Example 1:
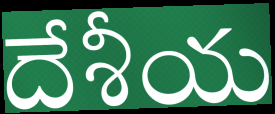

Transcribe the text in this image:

దేశీయ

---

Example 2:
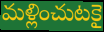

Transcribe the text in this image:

మళ్లించుటకై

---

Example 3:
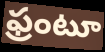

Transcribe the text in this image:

ఫ్రంటూ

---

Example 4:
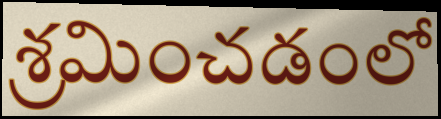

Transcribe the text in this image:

శ్రమించడంలో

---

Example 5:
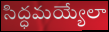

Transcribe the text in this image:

సిద్ధమయ్యేలా